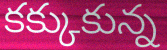
కక్కుకున్న